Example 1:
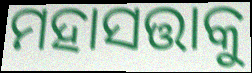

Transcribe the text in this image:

ମହାସତ୍ତାକୁ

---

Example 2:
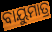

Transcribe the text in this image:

ବାୟୁମାତ୍ର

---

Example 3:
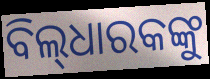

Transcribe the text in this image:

ବିଲ୍‌ଧାରକଙ୍କୁ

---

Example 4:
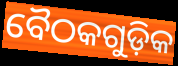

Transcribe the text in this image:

ବୈଠକଗୁଡ଼ିକ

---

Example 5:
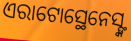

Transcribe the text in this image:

ଏରାଟୋସ୍ଥେନେସ୍ଙ୍କ